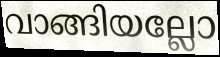
വാങ്ങിയല്ലോ